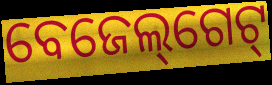
ବେଜେଲ୍‌ଗେଟ୍